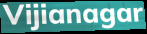
Vijianagar